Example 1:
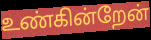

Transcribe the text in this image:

உண்கின்றேன்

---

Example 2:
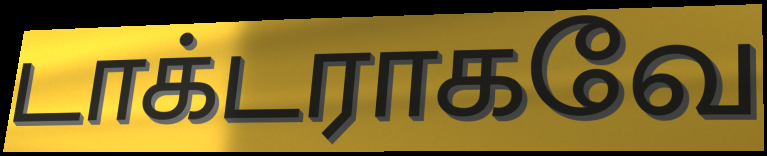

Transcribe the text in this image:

டாக்டராகவே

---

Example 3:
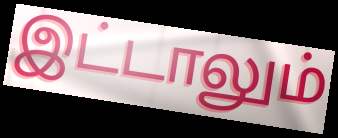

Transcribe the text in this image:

இட்டாலும்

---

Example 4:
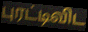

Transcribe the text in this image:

புரட்டிவிட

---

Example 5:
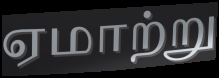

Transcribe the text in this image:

ஏமாற்று